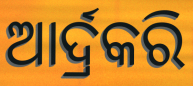
ଆର୍ଦ୍ରକରି